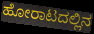
ಹೋರಾಟದಲ್ಲಿನ